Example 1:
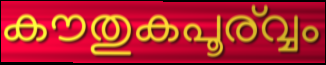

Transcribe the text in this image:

കൗതുകപൂര്വ്വം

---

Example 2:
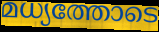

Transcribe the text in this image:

മധ്യത്തോടെ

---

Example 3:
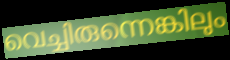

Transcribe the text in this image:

വെച്ചിരുന്നെങ്കിലും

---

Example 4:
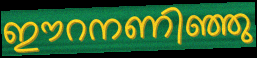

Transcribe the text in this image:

ഈറനണിഞ്ഞു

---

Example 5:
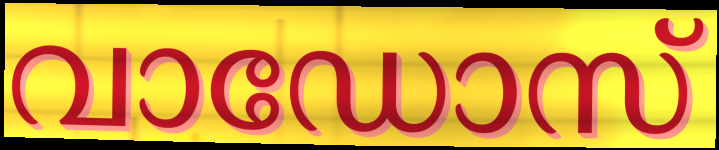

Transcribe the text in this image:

വാഡോസ്